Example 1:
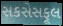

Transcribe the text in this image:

સકસેસફૂલ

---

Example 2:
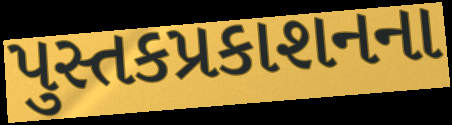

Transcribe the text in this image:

પુસ્તકપ્રકાશનના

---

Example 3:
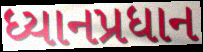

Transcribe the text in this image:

ધ્યાનપ્રધાન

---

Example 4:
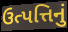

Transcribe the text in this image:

ઉત્પત્તિનું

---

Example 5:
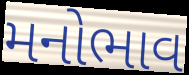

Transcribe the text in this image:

મનોભાવ